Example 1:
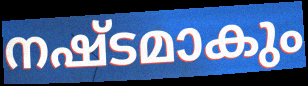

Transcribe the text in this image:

നഷ്ടമാകും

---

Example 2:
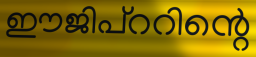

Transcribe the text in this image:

ഈജിപ്ററിന്റെ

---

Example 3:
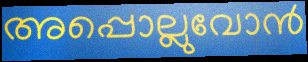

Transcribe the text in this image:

അപ്പൊല്ലുവോൻ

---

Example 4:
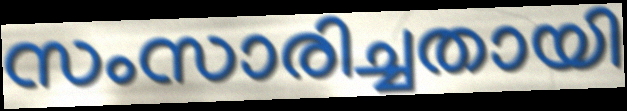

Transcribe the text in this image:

സംസാരിച്ചതായി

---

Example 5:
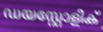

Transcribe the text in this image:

ഡയസ്റ്റോളിക്